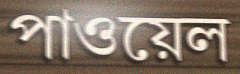
পাওয়েল